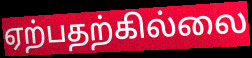
ஏற்பதற்கில்லை